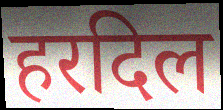
हरदिल